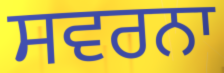
ਸਵਰਨਾ